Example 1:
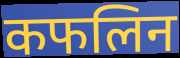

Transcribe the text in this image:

कफलिन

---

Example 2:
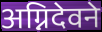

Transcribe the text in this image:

अग्निदेवने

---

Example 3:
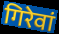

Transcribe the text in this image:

गिरेवां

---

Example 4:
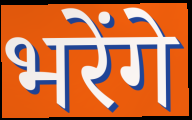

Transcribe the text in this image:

भरेंगे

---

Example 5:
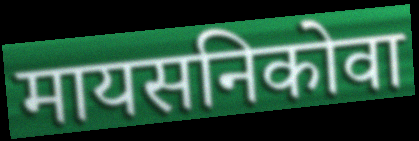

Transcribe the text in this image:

मायसनिकोवा